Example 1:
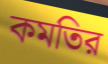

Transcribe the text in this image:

কমতির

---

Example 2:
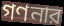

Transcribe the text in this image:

গণনার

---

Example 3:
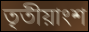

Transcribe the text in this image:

তৃতীয়াংশ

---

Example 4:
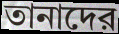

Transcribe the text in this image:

তানাদের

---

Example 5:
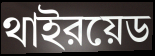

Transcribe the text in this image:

থাইরয়েড